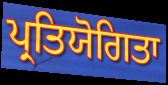
ਪ੍ਰਤਿਯੋਗਿਤਾ